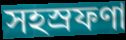
সহস্রফণা